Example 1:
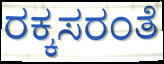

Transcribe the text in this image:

ರಕ್ಕಸರಂತೆ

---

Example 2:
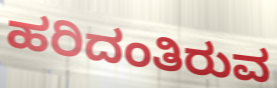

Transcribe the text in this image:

ಹರಿದಂತಿರುವ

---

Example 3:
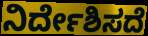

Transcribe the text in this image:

ನಿರ್ದೇಶಿಸದೆ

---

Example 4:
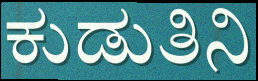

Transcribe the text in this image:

ಕುಡುತಿನಿ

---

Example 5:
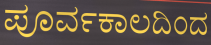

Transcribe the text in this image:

ಪೂರ್ವಕಾಲದಿಂದ